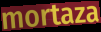
mortaza